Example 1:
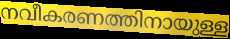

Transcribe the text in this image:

നവീകരണത്തിനായുള്ള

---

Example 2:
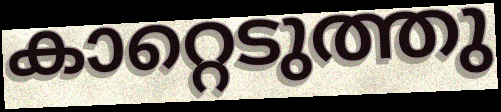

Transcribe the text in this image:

കാറ്റെടുത്തു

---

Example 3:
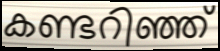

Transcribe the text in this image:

കണ്ടറിഞ്ഞ്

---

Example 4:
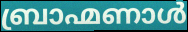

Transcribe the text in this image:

ബ്രാഹ്മണാൾ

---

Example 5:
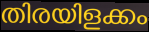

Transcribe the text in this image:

തിരയിളക്കം